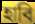
হাবি